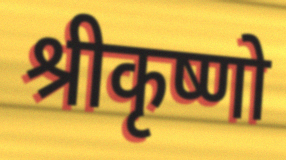
श्रीकृष्णो